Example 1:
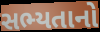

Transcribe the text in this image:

સભ્યતાનો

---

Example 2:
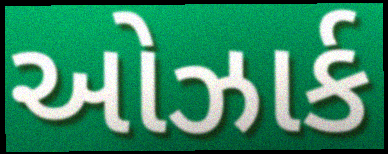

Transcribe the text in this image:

ઓઝાર્ક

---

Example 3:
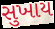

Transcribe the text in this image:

સુખાય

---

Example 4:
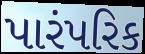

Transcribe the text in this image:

પારંપરિક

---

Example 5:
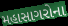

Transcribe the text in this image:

મહાસાગરોના